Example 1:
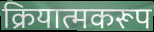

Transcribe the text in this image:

क्रियात्मकरूप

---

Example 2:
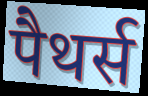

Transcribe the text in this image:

पैथर्स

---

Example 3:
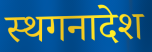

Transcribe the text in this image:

स्थगनादेश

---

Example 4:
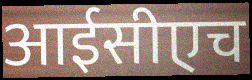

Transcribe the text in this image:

आईसीएच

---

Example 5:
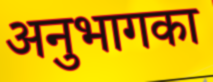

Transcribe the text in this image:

अनुभागका